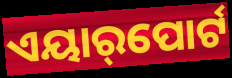
ଏୟାର୍‌ପୋର୍ଟ